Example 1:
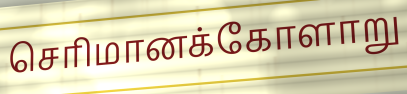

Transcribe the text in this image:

செரிமானக்கோளாறு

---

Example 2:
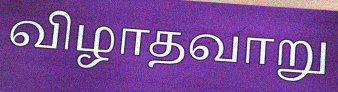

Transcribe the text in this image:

விழாதவாறு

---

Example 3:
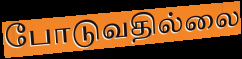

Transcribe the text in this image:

போடுவதில்லை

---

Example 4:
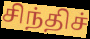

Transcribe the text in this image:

சிந்திச்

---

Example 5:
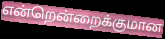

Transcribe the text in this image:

என்றென்றைக்குமான